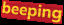
beeping